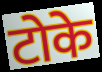
टोके